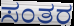
ಸಂತರ